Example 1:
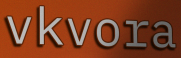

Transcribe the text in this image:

vkvora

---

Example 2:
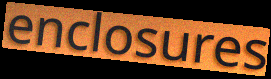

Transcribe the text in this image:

enclosures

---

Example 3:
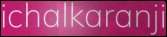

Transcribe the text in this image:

ichalkaranji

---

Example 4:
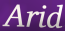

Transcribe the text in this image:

Arid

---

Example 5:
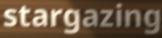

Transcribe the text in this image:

stargazing